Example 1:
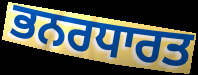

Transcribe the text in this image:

ਭਨਰਧਾਰਤ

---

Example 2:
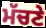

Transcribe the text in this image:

ਮੱਚਣੇ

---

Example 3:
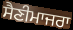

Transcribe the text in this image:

ਸੈਣੀਮਾਜਰਾ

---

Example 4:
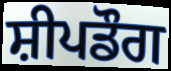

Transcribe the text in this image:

ਸ਼ੀਪਡੌਗ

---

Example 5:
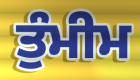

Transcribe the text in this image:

ਤੁੰਮੀਮ